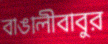
বাঙালীবাবুর